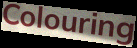
Colouring